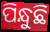
ପିନ୍ଧୁଛି